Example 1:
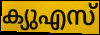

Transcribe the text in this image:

ക്യുഎസ്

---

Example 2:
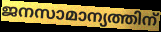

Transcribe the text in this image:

ജനസാമാന്യത്തിന്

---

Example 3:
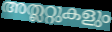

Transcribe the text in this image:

അത്ലറ്റുകളും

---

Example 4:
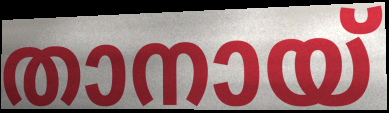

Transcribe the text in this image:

താനായ്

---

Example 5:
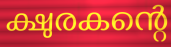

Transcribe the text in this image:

ക്ഷുരകന്റെ